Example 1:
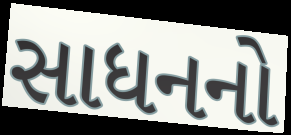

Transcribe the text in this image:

સાધનનો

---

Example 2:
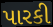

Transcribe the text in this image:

પારકી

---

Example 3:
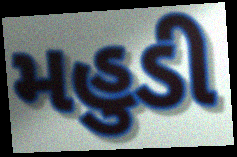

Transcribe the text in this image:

મહુડી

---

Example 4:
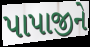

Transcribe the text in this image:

પાપાજીને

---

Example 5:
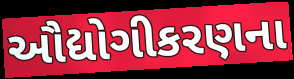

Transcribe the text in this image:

ઔદ્યોગીકરણના